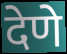
देणे